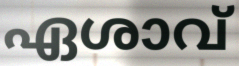
ഏശാവ്